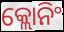
କ୍ଲୋନିଂ